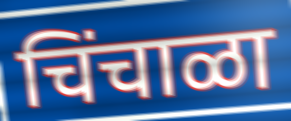
चिंचाळा